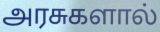
அரசுகளால்